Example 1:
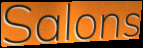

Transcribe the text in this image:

Salons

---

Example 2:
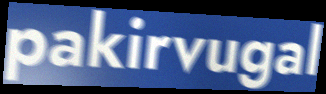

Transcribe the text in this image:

pakirvugal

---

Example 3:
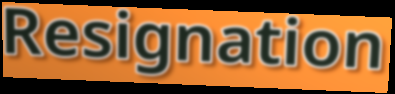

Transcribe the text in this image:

Resignation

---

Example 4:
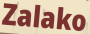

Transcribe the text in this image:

Zalako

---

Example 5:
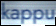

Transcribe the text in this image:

kappu